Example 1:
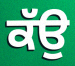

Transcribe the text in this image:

ਕੱਉ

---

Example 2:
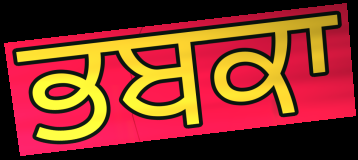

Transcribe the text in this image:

ਭਬਕਾ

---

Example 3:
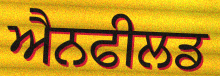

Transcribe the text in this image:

ਐਨਫੀਲਡ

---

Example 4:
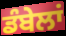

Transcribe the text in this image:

ਡੰਬੇਲਾਂ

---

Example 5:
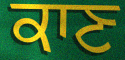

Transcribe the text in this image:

ਕਾਣ